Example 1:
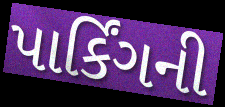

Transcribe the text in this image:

પાર્કિંગની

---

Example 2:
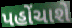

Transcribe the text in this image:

પહોંચાશે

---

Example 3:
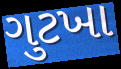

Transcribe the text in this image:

ગુટખા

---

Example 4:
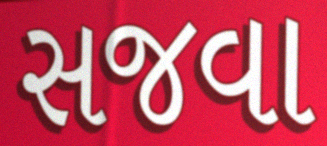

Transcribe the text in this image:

સજવા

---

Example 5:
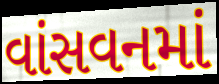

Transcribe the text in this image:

વાંસવનમાં